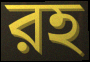
রহ